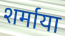
शर्माया